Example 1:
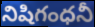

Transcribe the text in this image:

నిషిగంధనీ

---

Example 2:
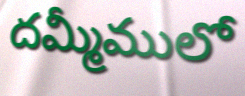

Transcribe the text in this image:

దమ్మీములో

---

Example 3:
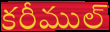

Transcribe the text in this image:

కరీముల్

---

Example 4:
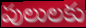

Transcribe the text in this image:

పులులకు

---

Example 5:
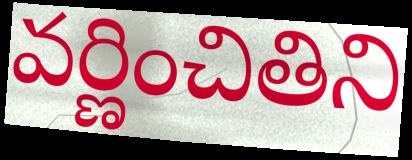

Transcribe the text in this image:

వర్ణించితిని